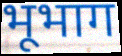
भूभाग